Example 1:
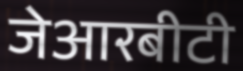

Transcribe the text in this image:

जेआरबीटी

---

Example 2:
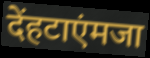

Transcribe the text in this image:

देंहटाएंमजा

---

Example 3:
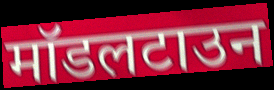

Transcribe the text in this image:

मॉडलटाउन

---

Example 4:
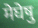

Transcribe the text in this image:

मेघेषु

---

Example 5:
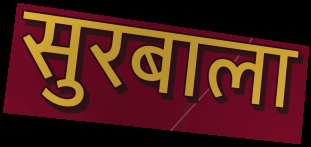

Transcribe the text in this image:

सुरबाला